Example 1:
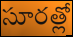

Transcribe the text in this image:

సూరత్లో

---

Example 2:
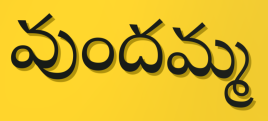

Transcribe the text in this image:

వుందమ్మ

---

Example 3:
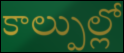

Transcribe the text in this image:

కాల్పుల్లో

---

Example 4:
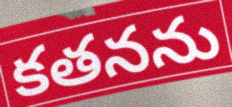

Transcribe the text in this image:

కతనను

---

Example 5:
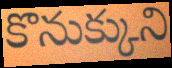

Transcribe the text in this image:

కొనుక్కుని